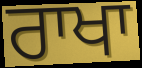
ਰਾਖਾ